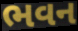
ભવન